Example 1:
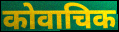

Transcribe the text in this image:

कोवाचिक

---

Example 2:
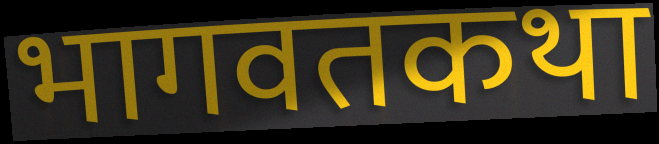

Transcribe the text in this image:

भागवतकथा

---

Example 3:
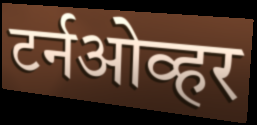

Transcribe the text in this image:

टर्नओव्हर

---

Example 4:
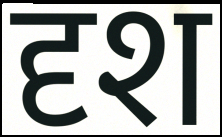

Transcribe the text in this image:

दृश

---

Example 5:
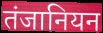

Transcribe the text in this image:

तंजानियन